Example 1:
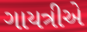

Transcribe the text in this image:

ગાયત્રીએ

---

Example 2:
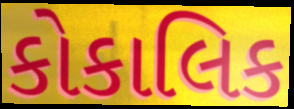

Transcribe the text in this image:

કોકાલિક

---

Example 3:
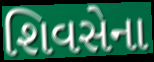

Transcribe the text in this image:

શિવસેના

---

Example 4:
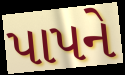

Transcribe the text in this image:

પાપને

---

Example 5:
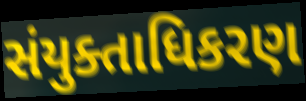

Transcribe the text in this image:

સંયુક્તાધિકરણ